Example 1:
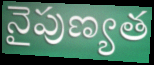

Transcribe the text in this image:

నైపుణ్యత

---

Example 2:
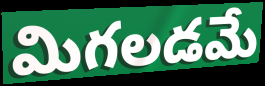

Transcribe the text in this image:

మిగలడమే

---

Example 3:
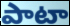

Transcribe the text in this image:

పాటా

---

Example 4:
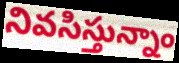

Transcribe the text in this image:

నివసిస్తున్నాం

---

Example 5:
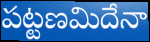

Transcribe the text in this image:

పట్టణమిదేనా